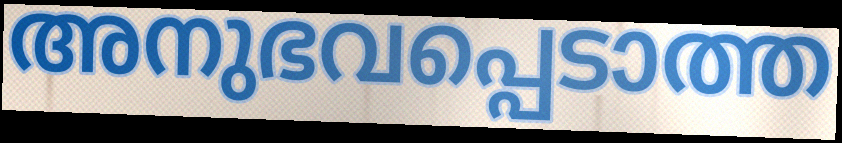
അനുഭവപ്പെടാത്ത